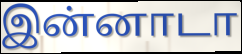
இன்னாடா